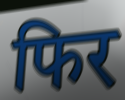
फिर